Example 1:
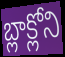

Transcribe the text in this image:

బ్లాక్లోని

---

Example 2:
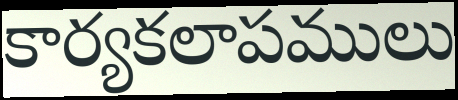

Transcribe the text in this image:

కార్యకలాపములు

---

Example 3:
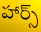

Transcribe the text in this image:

హార్స్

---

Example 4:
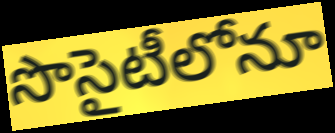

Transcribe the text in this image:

సొసైటీలోనూ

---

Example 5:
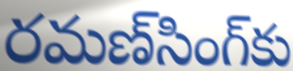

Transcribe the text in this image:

రమణ్‌సింగ్‌కు